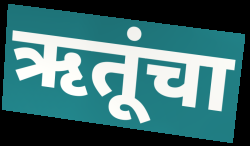
ऋतूंचा